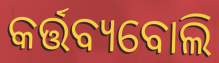
କର୍ତ୍ତବ୍ୟବୋଲି